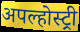
अपल्होस्ट्री